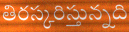
తిరస్కరిస్తున్నది